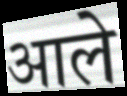
आले